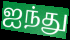
ஐந்து